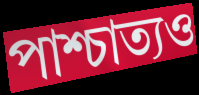
পাশ্চাত্যও